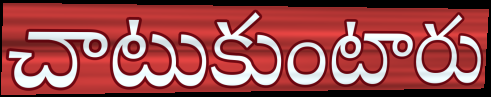
చాటుకుంటారు